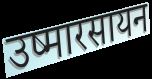
उष्मारसायन